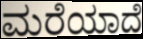
ಮರೆಯಾದೆ